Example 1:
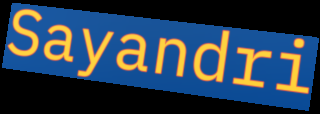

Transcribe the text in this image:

Sayandri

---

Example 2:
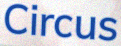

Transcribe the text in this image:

Circus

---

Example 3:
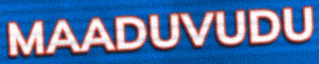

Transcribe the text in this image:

MAADUVUDU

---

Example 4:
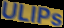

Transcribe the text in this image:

ULIPs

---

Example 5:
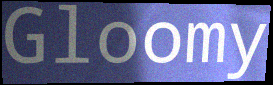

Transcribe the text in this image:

Gloomy